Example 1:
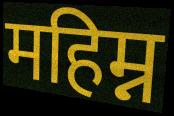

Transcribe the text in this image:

महिम्न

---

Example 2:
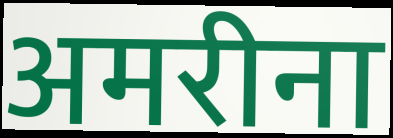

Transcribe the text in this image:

अमरीना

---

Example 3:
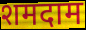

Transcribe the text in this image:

शमदाम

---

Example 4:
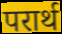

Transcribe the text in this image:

परार्थ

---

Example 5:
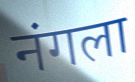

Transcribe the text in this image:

नंगला